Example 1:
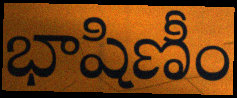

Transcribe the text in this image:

భాషిణీం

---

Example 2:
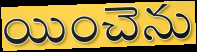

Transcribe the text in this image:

యించెను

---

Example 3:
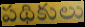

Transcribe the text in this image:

పథికులు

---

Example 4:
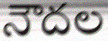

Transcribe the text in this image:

నౌదల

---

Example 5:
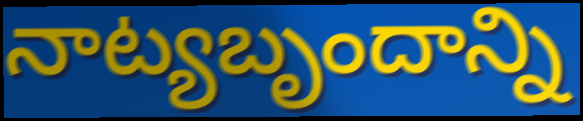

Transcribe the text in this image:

నాట్యబృందాన్ని